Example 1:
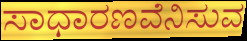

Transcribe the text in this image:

ಸಾಧಾರಣವೆನಿಸುವ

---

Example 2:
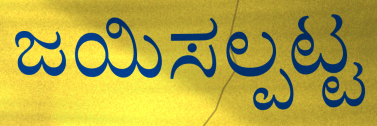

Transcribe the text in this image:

ಜಯಿಸಲ್ಪಟ್ಟ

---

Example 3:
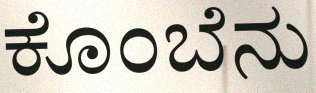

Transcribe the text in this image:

ಕೊಂಬೆನು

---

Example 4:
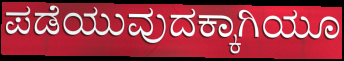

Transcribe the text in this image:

ಪಡೆಯುವುದಕ್ಕಾಗಿಯೂ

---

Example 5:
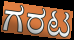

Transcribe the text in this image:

ಗರಟ